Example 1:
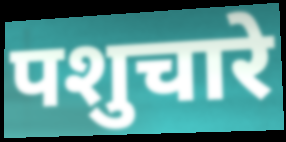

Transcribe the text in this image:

पशुचारे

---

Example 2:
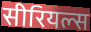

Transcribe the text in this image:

सीरियल्स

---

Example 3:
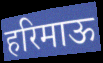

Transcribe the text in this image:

हरिमाऊ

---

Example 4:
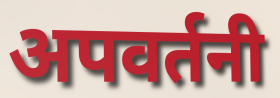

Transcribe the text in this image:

अपवर्तनी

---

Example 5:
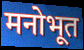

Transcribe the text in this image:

मनोभूत